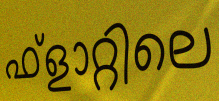
ഫ്ളാറ്റിലെ